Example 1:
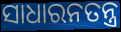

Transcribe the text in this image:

ସାଧାରନତନ୍ତ୍ର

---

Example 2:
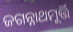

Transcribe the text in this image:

ଜଗନ୍ନାଥମୂର୍ତ୍ତି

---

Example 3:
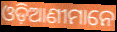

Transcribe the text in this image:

ଓଡ଼ିଆଣୀମାନେ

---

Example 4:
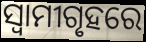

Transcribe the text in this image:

ସ୍ଵାମୀଗୃହରେ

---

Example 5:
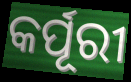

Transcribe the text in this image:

କର୍ପୂରୀ